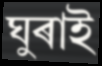
ঘুৰাই